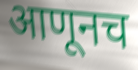
आणूनच